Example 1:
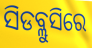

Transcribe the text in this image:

ସିଡବ୍ଲୁସିରେ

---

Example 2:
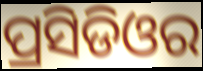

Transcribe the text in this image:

ପ୍ରସିଡିଓର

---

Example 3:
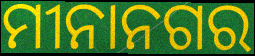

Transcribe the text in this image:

ମୀନାନଗର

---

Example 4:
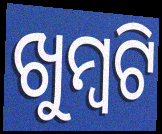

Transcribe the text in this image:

ଖୁମ୍ବଟି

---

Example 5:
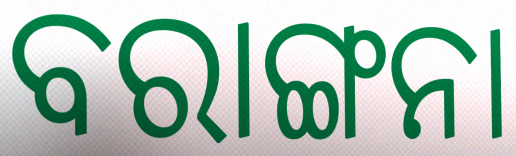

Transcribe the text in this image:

ବରାଙ୍ଗନା